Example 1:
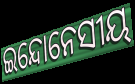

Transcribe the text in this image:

ଇନ୍ଦୋନେସୀୟ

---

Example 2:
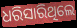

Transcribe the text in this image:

ଧରିସାରିଥିଲେ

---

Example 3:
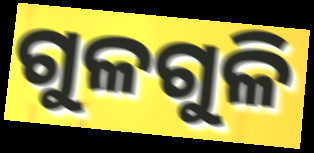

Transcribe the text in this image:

ଗୁଳଗୁଳି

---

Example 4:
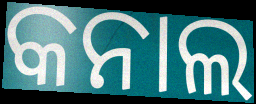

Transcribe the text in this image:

କନାଲ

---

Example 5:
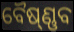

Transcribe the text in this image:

ବୈଷ୍ଣ୍ଣବ